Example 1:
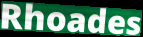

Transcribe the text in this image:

Rhoades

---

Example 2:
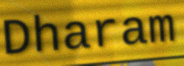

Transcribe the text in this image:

Dharam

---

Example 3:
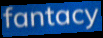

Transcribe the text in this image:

fantacy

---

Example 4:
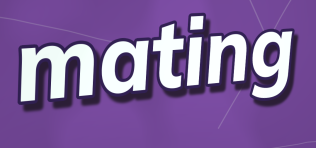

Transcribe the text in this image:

mating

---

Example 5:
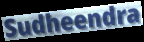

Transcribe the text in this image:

Sudheendra